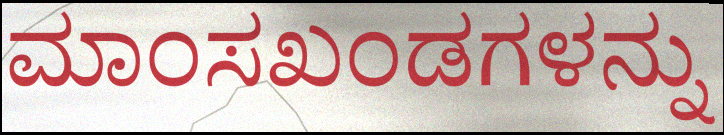
ಮಾಂಸಖಂಡಗಳನ್ನು